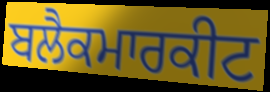
ਬਲੈਕਮਾਰਕੀਟ